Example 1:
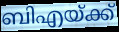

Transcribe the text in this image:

ബിഎയ്ക്ക്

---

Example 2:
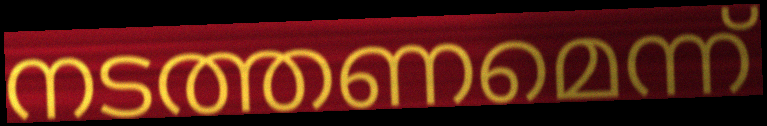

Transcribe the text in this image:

നടത്തണമെന്ന്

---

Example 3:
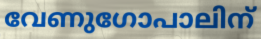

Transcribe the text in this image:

വേണുഗോപാലിന്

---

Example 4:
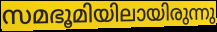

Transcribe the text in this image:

സമഭൂമിയിലായിരുന്നു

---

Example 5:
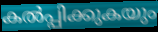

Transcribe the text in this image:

കൽപ്പിക്കുകയും